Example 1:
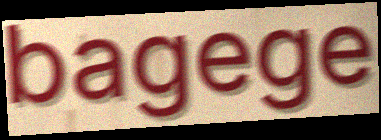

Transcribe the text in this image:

bagege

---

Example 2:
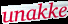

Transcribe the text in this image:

unakke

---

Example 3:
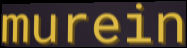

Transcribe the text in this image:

murein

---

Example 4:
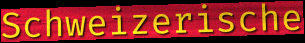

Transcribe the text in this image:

Schweizerische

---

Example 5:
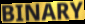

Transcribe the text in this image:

BINARY